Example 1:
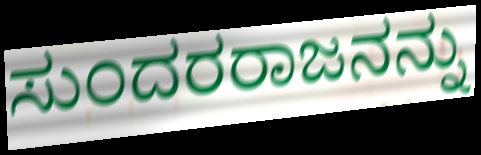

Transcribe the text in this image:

ಸುಂದರರಾಜನನ್ನು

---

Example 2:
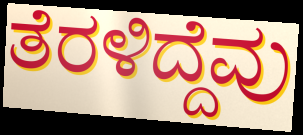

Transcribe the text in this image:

ತೆರಳಿದ್ದೆವು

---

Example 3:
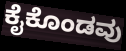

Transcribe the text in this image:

ಕೈಕೊಂಡವು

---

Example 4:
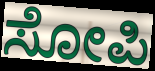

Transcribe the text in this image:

ಸೋಪಿ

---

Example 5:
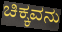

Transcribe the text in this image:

ಚಿಕ್ಕವನು